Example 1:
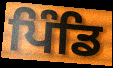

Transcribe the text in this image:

ਪਿੰਡਿ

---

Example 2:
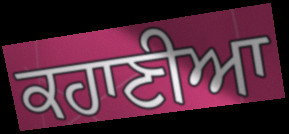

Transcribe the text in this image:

ਕਹਾਣੀਆ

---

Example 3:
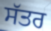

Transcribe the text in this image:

ਸੱਤਰ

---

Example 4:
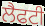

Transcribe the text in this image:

ਲੈਫਟੀ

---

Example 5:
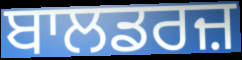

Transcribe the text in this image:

ਬਾਲਡਰਜ਼